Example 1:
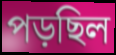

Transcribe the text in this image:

পড়ছিল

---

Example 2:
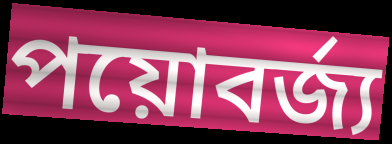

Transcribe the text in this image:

পয়োবর্জ্য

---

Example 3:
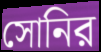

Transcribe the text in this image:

সোনির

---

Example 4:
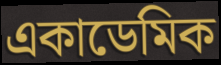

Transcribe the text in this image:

একাডেমিক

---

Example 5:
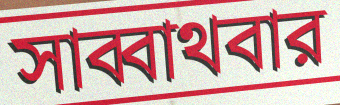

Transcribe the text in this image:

সাব্বাথবার